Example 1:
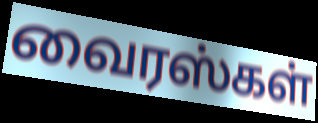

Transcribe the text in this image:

வைரஸ்கள்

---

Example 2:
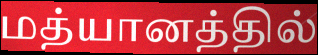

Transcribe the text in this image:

மத்யானத்தில்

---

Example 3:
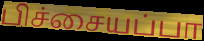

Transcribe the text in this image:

பிச்சையப்பா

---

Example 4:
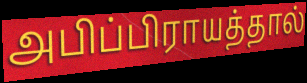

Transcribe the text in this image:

அபிப்பிராயத்தால்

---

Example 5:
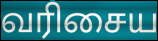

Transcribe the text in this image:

வரிசைய